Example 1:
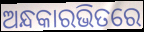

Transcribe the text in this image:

ଅନ୍ଧକାରଭିତରେ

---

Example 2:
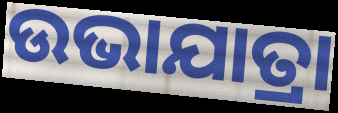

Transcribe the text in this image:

ଉଭାଯାତ୍ରା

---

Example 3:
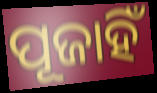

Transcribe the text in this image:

ପୂଜାହିଁ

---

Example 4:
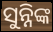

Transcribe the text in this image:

ସୁନ୍ନିଙ୍କ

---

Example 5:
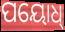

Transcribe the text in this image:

ପୟୋଧ୍